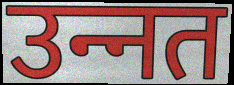
उन्‍नत